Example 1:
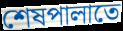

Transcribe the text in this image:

শেষপালাতে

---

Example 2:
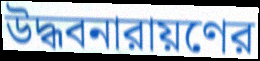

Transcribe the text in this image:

উদ্ধবনারায়ণের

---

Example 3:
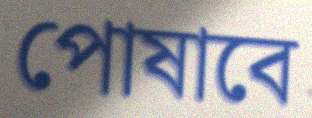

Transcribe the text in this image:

পোষাবে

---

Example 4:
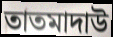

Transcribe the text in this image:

তাতমাদাউ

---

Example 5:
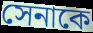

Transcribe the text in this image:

সেনাকে